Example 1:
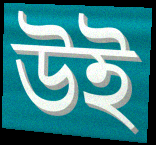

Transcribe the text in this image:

উই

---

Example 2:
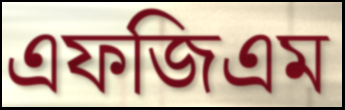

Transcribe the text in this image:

এফজিএম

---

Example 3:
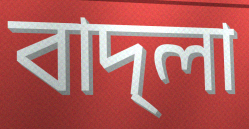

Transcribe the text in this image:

বাদ্‌লা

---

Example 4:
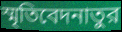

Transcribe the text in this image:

স্মৃতিবেদনাতুর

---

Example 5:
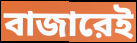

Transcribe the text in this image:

বাজারেই